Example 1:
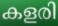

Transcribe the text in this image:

കളരി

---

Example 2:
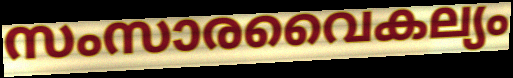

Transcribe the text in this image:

സംസാരവൈകല്യം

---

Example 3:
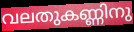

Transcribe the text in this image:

വലതുകണ്ണിനു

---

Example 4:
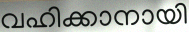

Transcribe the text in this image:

വഹിക്കാനായി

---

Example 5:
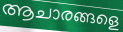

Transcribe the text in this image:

ആചാരങ്ങളെ